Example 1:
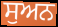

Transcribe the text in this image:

ਸੁਅਨ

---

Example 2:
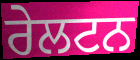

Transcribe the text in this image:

ਰੇਲਟਨ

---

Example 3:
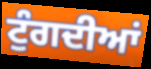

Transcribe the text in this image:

ਟੁੰਗਦੀਆਂ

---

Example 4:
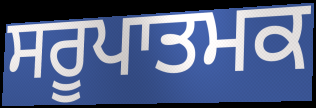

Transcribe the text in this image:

ਸਰੂਪਾਤਮਕ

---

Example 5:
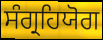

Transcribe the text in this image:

ਸੰਗ੍ਰਹਿਯੋਗ